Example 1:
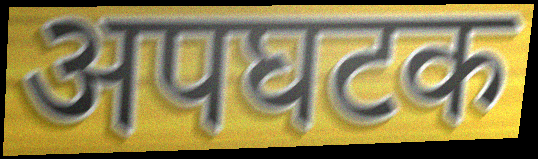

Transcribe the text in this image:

अपघटक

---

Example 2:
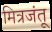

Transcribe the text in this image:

मित्रजंतू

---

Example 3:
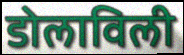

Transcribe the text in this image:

डोलाविली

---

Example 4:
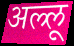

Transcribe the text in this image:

अल्लू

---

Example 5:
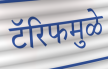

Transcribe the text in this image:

टॅरिफमुळे